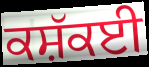
ਕਸ਼ੱਕਈ